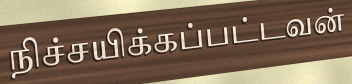
நிச்சயிக்கப்பட்டவன்